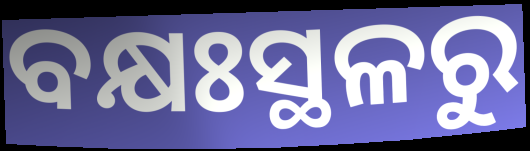
ବକ୍ଷଃସ୍ଥଳରୁ